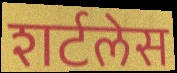
शर्टलेस